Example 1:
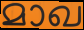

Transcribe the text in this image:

മാഖ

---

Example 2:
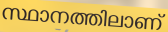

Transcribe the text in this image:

സ്ഥാനത്തിലാണ്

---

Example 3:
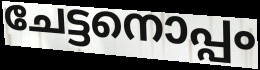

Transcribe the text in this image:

ചേട്ടനൊപ്പം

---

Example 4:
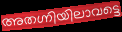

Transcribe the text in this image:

അതഗ്നിയിലാവട്ടെ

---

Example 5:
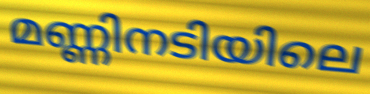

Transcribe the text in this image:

മണ്ണിനടിയിലെ